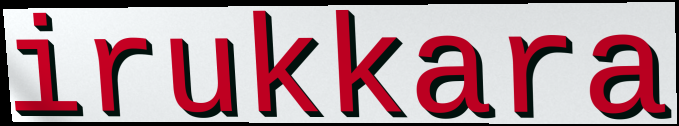
irukkara